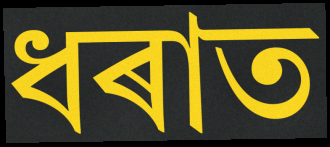
ধৰাত